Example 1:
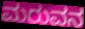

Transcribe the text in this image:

ಮರುವನ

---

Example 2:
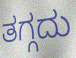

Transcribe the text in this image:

ತಗ್ಗದು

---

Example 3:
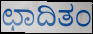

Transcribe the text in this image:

ಛಾದಿತಂ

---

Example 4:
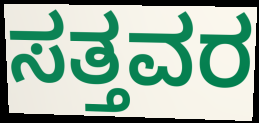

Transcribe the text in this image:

ಸತ್ತವರ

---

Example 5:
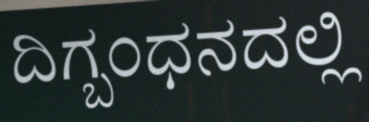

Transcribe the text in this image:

ದಿಗ್ಬಂಧನದಲ್ಲಿ